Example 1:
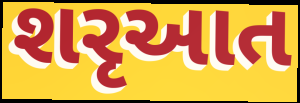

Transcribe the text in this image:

શરૃઆત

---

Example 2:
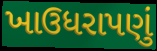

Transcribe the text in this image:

ખાઉધરાપણું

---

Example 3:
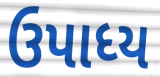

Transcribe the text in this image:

ઉપાધ્ય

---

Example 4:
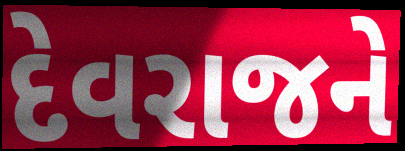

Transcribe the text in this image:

દેવરાજને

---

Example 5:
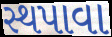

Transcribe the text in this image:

સ્થપાવા